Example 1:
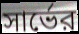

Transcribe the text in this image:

সার্ভের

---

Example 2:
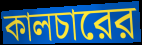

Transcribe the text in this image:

কালচারের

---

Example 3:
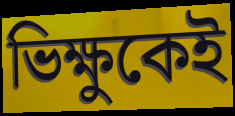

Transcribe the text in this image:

ভিক্ষুকেই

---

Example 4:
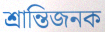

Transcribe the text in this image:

শ্রান্তিজনক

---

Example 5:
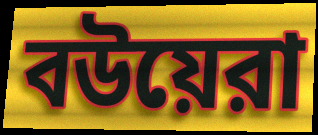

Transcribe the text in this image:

বউয়েরা